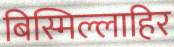
बिस्मिल्लाहिर